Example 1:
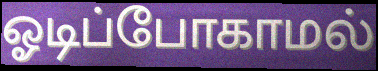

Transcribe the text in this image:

ஓடிப்போகாமல்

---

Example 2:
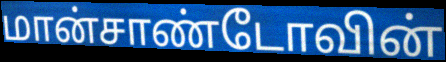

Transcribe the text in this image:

மான்சாண்டோவின்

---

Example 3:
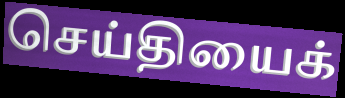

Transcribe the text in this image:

செய்தியைக்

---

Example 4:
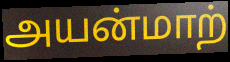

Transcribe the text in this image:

அயன்மாற்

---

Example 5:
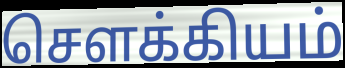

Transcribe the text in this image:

சௌக்கியம்